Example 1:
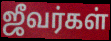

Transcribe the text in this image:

ஜீவர்கள்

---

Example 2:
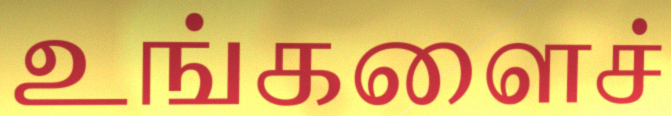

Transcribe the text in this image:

உங்களைச்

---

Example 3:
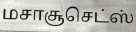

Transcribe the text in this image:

மசாசூசெட்ஸ்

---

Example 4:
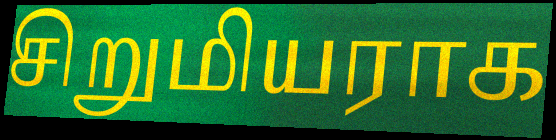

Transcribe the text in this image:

சிறுமியராக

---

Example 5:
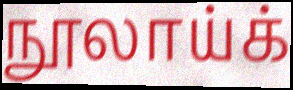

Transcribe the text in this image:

நூலாய்க்